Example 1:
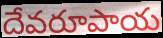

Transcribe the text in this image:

దేవరూపాయ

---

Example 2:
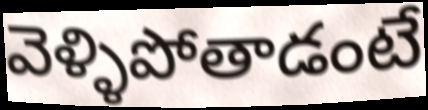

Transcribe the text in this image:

వెళ్ళిపోతాడంటే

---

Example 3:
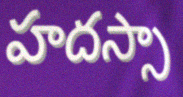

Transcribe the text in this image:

హదస్సా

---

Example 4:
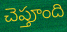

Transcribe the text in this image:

చెప్తూంది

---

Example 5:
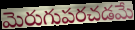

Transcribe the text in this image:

మెరుగుపరచడమే